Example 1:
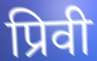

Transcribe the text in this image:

प्रिवी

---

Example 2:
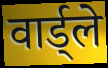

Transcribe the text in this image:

वार्ड्ले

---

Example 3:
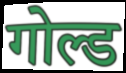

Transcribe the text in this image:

गोल्‍ड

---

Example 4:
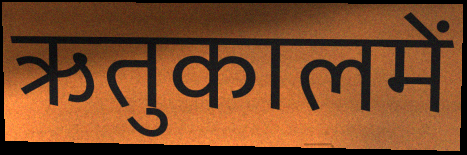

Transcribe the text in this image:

ऋतुकालमें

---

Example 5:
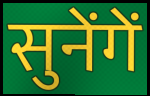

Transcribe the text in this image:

सुनेंगें